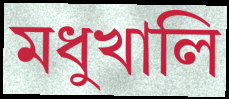
মধুখালি